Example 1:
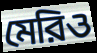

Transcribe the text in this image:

মেরিও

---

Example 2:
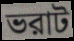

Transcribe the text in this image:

ভরাট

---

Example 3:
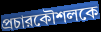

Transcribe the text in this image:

প্রচারকৌশলকে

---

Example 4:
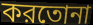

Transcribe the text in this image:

করতোনা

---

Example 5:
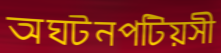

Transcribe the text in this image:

অঘটনপটিয়সী